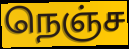
நெஞ்ச